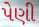
પેણી